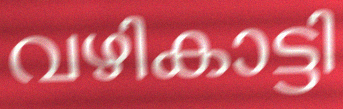
വഴികാട്ടി